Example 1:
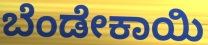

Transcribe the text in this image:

ಬೆಂಡೇಕಾಯಿ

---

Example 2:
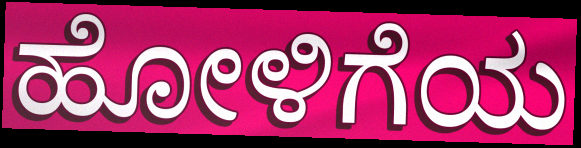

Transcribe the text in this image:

ಹೋಳಿಗೆಯ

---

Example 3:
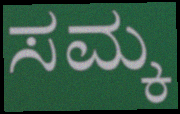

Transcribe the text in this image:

ಸಮ್ಕ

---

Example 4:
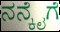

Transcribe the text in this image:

ನನ್ಕೈಗೆ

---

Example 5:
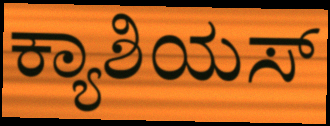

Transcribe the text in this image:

ಕ್ಯಾಶಿಯಸ್